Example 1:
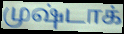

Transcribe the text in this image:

முஷ்டாக்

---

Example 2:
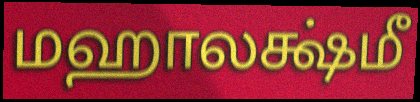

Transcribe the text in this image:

மஹாலக்ஷ்மீ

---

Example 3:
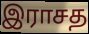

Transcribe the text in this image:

இராசத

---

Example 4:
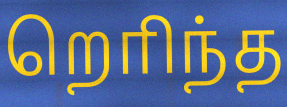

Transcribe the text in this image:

றெரிந்த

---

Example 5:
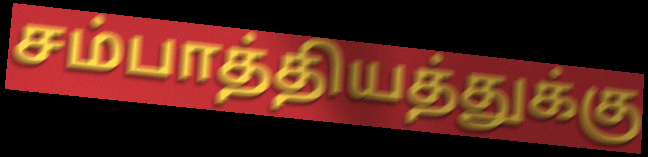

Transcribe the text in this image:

சம்பாத்தியத்துக்கு